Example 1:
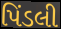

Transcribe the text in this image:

પિંડલી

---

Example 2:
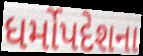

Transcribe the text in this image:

ધર્મોપદેશના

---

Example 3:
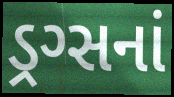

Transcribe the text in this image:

ડ્રગ્સનાં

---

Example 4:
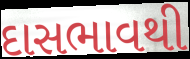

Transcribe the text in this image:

દાસભાવથી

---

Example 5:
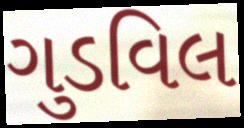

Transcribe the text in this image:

ગુડવિલ